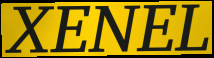
XENEL